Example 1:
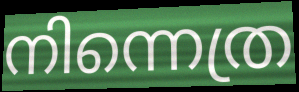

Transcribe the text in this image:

നിന്നെത്ര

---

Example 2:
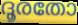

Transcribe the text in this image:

ദൂരതോ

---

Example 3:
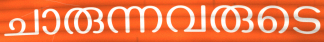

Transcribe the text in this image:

ചാരുന്നവരുടെ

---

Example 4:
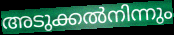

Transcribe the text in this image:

അടുക്കൽനിന്നും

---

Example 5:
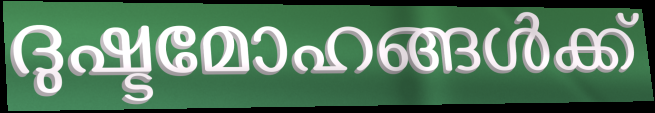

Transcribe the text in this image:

ദുഷ്ടമോഹങ്ങൾക്ക്